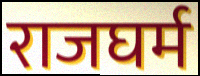
राजघर्म